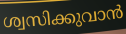
ശ്വസിക്കുവാൻ